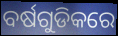
ବର୍ଷଗୁଡିକରେ